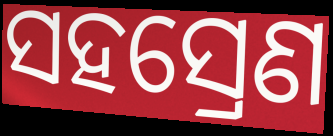
ସହସ୍ରେଣ